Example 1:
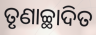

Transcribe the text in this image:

ତୃଣାଚ୍ଛାଦିତ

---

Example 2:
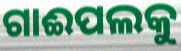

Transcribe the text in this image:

ଗାଈପଲକୁ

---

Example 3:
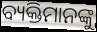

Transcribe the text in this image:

ବ୍ୟକ୍ତିମାନଙ୍କୁ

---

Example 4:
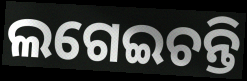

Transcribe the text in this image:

ଲଗେଇଚନ୍ତି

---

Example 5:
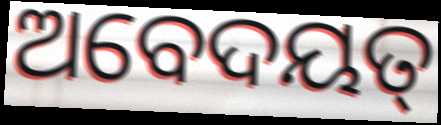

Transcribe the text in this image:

ଅବେଦୟତ୍